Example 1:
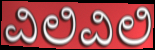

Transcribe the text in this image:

ವಿಲಿವಿಲಿ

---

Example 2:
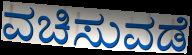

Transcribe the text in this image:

ವಚಿಸುವಡೆ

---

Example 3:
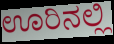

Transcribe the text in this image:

ಊರಿನಲ್ಲಿ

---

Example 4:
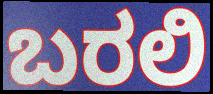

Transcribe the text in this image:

ಬರಲಿ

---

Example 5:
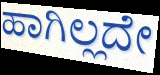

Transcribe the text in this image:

ಹಾಗಿಲ್ಲದೇ